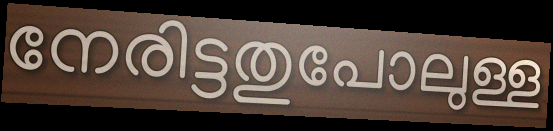
നേരിട്ടതുപോലുള്ള